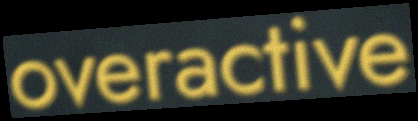
overactive